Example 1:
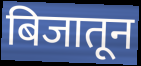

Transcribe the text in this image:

बिजातून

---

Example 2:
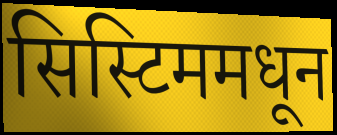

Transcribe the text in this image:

सिस्टिममधून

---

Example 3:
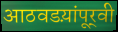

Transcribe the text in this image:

आठवडय़ांपूर्वी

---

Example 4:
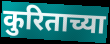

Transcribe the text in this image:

कुरिताच्या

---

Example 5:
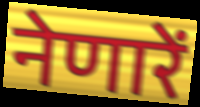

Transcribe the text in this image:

नेणारें